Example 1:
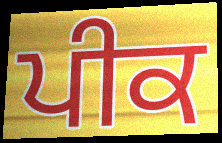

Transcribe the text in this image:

ਪੀਕ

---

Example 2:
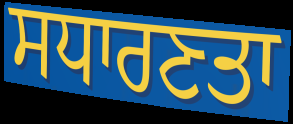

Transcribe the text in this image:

ਸਧਾਰਣਤਾ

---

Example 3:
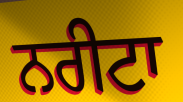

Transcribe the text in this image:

ਨਰੀਟਾ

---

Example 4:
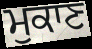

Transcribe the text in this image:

ਮੁਕਾਣ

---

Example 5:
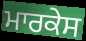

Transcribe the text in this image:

ਮਾਰਕੇਸ